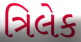
ત્રિલેક